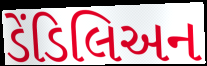
ડેંડિલિઅન